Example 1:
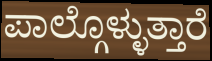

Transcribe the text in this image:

ಪಾಲ್ಗೊಳ್ಳುತ್ತಾರೆ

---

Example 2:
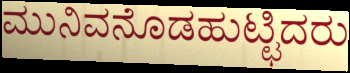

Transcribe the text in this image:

ಮುನಿವನೊಡಹುಟ್ಟಿದರು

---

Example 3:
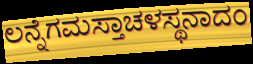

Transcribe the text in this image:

ಲನ್ನೆಗಮಸ್ತಾಚಳಸ್ಥನಾದಂ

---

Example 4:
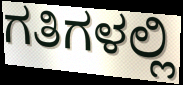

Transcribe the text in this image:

ಗತಿಗಳಲ್ಲಿ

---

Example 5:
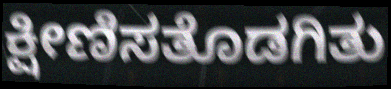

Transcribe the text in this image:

ಕ್ಷೀಣಿಸತೊಡಗಿತು